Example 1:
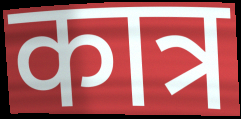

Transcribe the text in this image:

कात्र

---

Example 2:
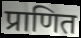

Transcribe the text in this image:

प्राणित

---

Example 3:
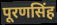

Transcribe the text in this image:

पूरणसिंह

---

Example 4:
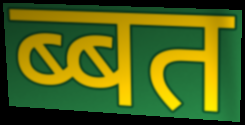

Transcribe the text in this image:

ब्बत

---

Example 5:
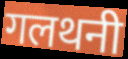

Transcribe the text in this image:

गलथनी